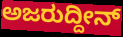
ಅಜರುದ್ದೀನ್